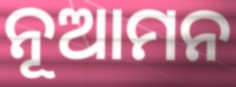
ନୂଆମନ